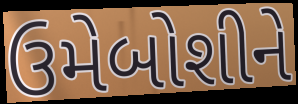
ઉમેબોશીને